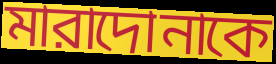
মারাদোনাকে